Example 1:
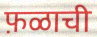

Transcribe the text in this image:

फ़ळाची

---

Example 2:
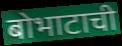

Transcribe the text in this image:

बोभाटाची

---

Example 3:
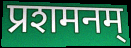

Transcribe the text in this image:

प्रशमनम्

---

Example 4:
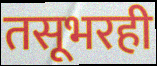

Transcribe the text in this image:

तसूभरही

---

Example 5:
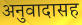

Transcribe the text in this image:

अनुवादासह